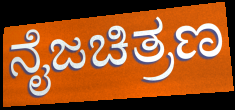
ನೈಜಚಿತ್ರಣ